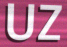
UZ